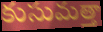
కుసుమత్తా